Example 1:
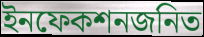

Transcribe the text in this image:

ইনফেকশনজনিত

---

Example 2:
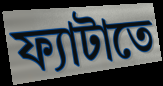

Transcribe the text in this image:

ফ্যাটাতে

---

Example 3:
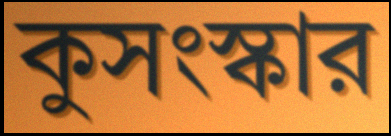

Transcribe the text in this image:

কুসংস্কার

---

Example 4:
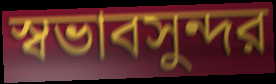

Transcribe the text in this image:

স্বভাবসুন্দর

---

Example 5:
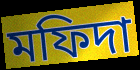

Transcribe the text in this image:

মফিদা